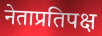
नेताप्रतिपक्ष